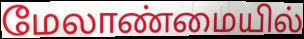
மேலாண்மையில்